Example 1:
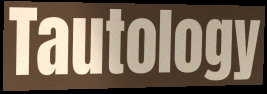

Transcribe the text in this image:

Tautology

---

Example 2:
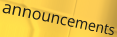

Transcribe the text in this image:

announcements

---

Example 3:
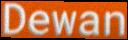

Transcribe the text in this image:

Dewan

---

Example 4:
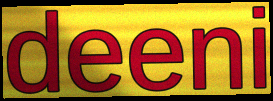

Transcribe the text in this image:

deeni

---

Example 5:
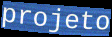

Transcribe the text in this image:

projeto